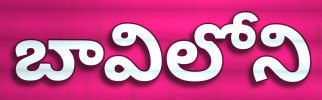
బావిలోని